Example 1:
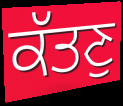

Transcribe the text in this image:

ਕੱਤਣੁ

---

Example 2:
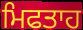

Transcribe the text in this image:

ਮਿਫਤਾਹ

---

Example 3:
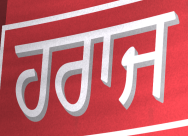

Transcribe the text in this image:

ਹਰਾਜ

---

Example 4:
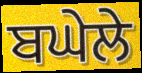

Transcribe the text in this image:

ਬਘੇਲੇ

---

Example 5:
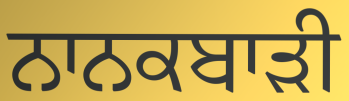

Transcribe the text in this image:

ਨਾਨਕਬਾੜੀ